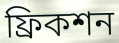
ফ্রিকশন